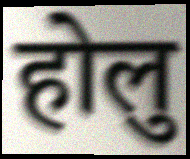
होलु